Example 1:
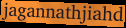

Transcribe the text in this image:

jagannathjiahd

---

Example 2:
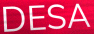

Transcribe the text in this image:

DESA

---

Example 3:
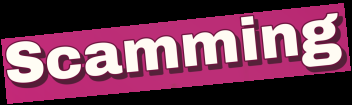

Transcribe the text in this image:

Scamming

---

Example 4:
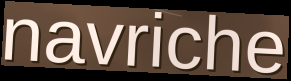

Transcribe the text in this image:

navriche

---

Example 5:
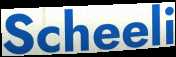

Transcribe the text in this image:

Scheeli